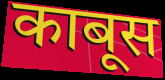
काबूस